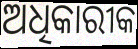
ଅଧିକାରୀକ